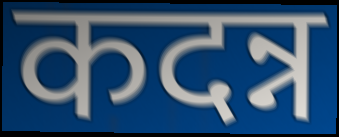
कदन्न